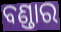
ବଣ୍ଡାର